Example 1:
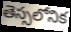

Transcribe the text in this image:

తెస్సలోనిక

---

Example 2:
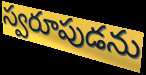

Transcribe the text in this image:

స్వరూపుడను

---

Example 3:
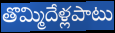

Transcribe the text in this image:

తొమ్మిదేళ్లపాటు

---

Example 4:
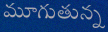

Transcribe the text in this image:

మూగుతున్న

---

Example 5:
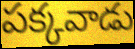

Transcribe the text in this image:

పక్కవాడు